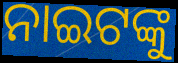
ନାଇଟଙ୍କୁ